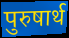
पुरुषार्थ